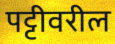
पट्टीवरील